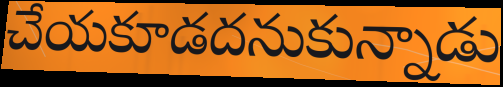
చేయకూడదనుకున్నాడు